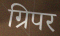
ग्रिपर